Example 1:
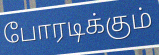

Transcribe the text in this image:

போரடிக்கும்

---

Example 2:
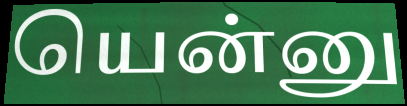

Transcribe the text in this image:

யென்னு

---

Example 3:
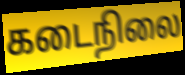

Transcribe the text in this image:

கடைநிலை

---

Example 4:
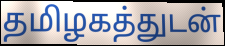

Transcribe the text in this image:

தமிழகத்துடன்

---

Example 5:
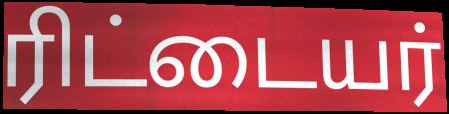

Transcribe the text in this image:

ரிட்டையர்